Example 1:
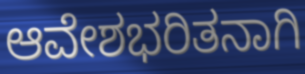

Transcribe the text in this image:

ಆವೇಶಭರಿತನಾಗಿ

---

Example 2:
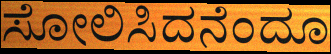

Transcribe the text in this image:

ಸೋಲಿಸಿದನೆಂದೂ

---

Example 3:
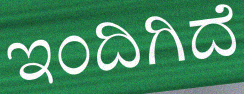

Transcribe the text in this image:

ಇಂದಿಗಿದೆ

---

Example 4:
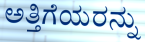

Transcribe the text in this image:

ಅತ್ತಿಗೆಯರನ್ನು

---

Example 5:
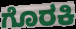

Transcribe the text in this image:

ಗೊರಕಿ